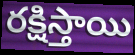
రక్షిస్తాయి